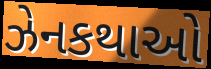
ઝેનકથાઓ